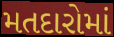
મતદારોમાં